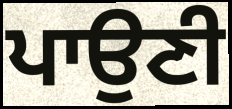
ਪਾਉਣੀ